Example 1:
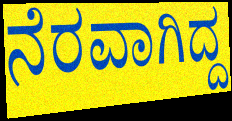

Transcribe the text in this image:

ನೆರವಾಗಿದ್ದ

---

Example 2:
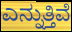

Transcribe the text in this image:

ಎನ್ನುತ್ತಿವೆ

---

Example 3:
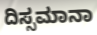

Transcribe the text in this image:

ದಿಸ್ಸಮಾನಾ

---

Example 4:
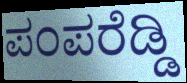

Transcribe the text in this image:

ಪಂಪರೆಡ್ಡಿ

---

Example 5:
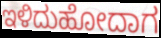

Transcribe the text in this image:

ಇಳಿದುಹೋದಾಗ